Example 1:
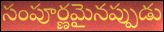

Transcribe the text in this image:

సంపూర్ణమైనప్పుడు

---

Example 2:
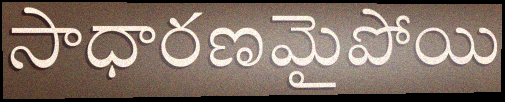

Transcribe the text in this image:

సాధారణమైపోయి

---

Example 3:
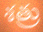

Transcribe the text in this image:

శత్రు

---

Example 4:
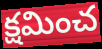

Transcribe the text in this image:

క్షమించ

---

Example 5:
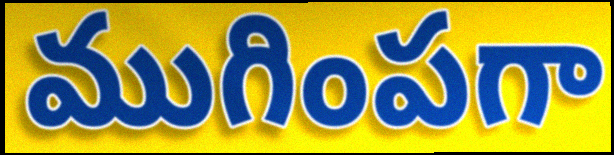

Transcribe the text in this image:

ముగింపగా